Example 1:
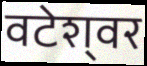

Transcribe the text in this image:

वटेश्वर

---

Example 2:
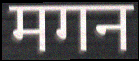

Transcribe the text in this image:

मगन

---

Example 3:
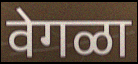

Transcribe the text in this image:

वेगळा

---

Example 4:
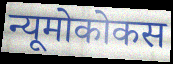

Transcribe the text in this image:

न्यूमोकोकस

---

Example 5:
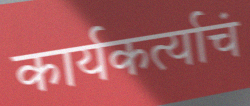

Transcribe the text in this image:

कार्यकर्त्याचं